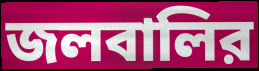
জলবালির